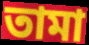
তামা